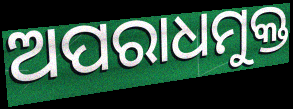
ଅପରାଧମୁକ୍ତ